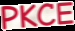
PKCE